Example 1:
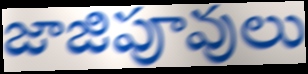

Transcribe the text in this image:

జాజిపూవులు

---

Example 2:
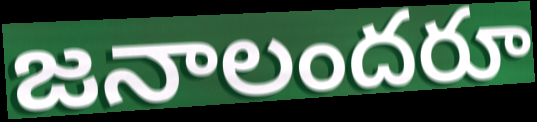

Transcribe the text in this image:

జనాలందరూ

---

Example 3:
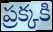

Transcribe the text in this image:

ప్రక్కకి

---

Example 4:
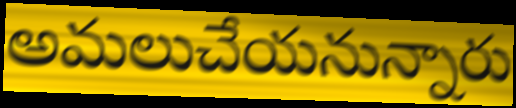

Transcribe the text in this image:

అమలుచేయనున్నారు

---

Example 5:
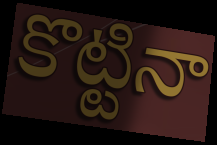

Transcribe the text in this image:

కొట్టినా